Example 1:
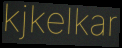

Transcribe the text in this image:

kjkelkar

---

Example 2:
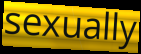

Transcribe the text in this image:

sexually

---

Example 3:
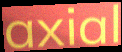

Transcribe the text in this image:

axial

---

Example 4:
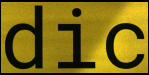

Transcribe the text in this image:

dic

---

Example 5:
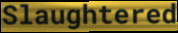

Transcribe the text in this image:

Slaughtered